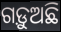
ଗଡ଼ୁଅଛି